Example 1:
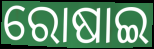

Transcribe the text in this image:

ରୋଷାଇ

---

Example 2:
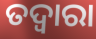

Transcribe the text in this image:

ତଦ୍ୱାରା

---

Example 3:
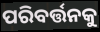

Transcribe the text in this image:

ପରିବର୍ତ୍ତନକୁ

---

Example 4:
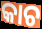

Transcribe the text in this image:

କାଚ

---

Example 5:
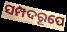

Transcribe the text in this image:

ସମ୍ପଦରୂପେ